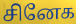
சினேக